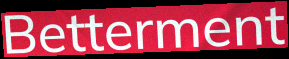
Betterment